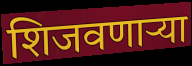
शिजवणाऱ्या